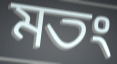
মতং